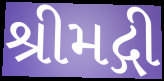
શ્રીમદ્ગી